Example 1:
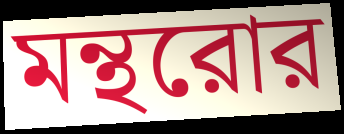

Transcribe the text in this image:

মন্থরোর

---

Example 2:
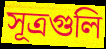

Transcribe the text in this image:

সূত্রগুলি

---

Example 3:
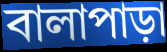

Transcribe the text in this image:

বালাপাড়া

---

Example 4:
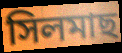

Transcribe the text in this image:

সিলমাছ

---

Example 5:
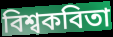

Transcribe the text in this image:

বিশ্বকবিতা